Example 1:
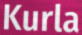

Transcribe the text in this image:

Kurla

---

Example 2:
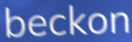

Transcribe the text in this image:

beckon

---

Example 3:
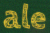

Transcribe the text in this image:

ale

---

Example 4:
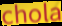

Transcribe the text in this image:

chola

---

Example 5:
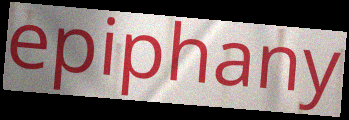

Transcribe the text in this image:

epiphany